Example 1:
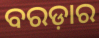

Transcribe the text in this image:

ବରଡ଼ାର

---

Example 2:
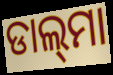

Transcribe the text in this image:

ଡାଲ୍‍ମା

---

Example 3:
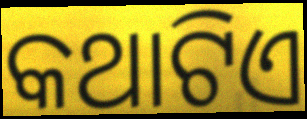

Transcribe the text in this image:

କଥାଟିଏ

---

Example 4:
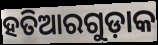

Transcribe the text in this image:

ହତିଆରଗୁଡ଼ାକ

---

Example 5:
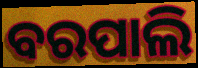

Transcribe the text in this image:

ବରପାଲି